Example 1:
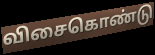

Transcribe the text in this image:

விசைகொண்டு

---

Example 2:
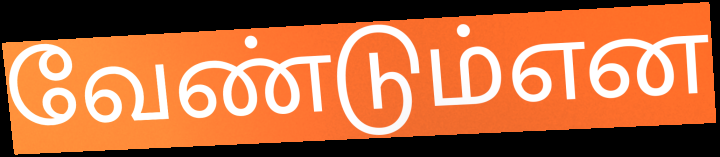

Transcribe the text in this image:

வேண்டும்என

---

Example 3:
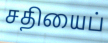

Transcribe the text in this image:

சதியைப்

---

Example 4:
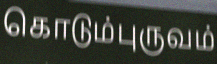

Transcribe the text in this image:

கொடும்புருவம்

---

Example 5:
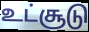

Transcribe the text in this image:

உட்சூடு